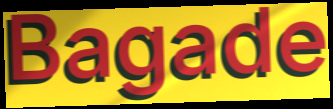
Bagade